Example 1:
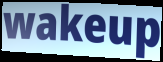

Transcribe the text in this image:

wakeup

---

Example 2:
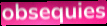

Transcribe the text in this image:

obsequies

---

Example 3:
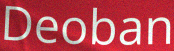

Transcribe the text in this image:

Deoban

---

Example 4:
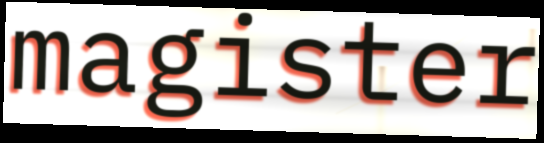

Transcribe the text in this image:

magister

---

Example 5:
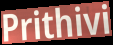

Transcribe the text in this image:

Prithivi